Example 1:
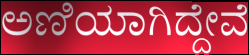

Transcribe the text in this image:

ಅಣಿಯಾಗಿದ್ದೇವೆ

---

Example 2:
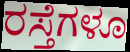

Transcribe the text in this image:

ರಸ್ತೆಗಳೂ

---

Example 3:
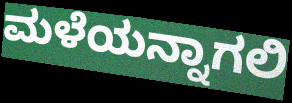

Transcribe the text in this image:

ಮಳೆಯನ್ನಾಗಲಿ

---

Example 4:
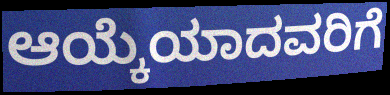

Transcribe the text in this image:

ಆಯ್ಕೆಯಾದವರಿಗೆ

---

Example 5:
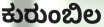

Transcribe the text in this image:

ಕುರುಂಬಿಲ